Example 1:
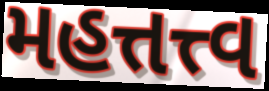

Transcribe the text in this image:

મહત્તત્ત્વ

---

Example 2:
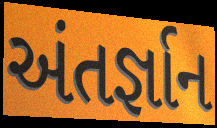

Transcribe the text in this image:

અંતર્જ્ઞાન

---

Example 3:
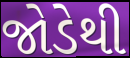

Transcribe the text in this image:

જોડેથી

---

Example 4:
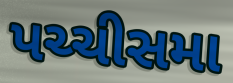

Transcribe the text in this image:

પચ્ચીસમા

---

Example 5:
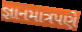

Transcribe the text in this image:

જ્ઞાનમાત્રપણે